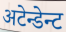
अटेन्डेन्ट